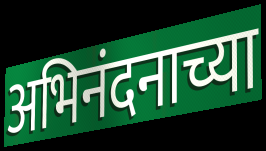
अभिनंदनाच्या